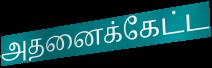
அதனைக்கேட்ட